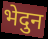
भेदुन